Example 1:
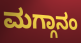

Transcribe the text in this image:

ಮಗ್ಗಾನಂ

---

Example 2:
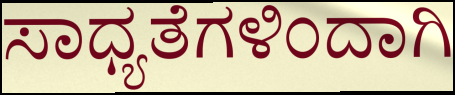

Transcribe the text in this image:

ಸಾಧ್ಯತೆಗಳಿಂದಾಗಿ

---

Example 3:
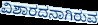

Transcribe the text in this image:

ವಿಶಾರದನಾಗಿರುವ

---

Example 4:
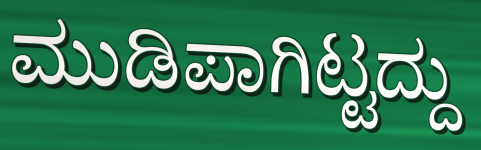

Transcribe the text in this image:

ಮುಡಿಪಾಗಿಟ್ಟದ್ದು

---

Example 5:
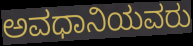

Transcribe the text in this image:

ಅವಧಾನಿಯವರು